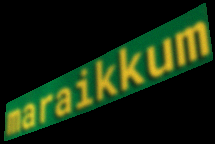
maraikkum